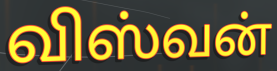
விஸ்வன்